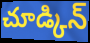
చూడ్కిన్